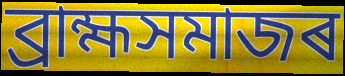
ব্ৰাহ্মসমাজৰ